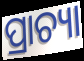
ପ୍ରାଚ୍ୟା